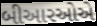
બીઆરઓએ